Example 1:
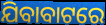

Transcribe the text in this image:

ଯିବାବାଟରେ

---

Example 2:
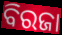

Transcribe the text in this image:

ବିରଜା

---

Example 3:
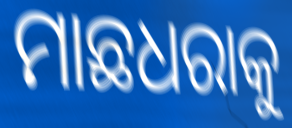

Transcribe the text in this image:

ମାଛଧରାକୁ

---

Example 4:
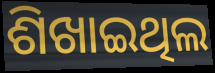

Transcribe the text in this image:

ଶିଖାଇଥିଲ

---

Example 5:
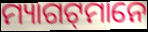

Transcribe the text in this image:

ମ୍ୟାଗଟ୍‌ମାନେ